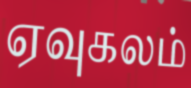
ஏவுகலம்